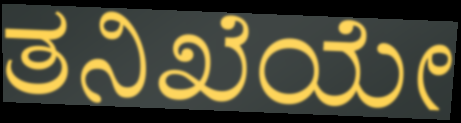
ತನಿಖೆಯೇ